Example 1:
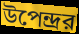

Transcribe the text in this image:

উপেন্দ্রর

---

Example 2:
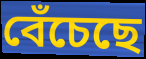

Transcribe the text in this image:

বেঁচেছে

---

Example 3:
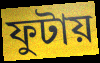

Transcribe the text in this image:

ফুটায়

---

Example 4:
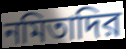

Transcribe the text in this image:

নমিতাদির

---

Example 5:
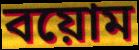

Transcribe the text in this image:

বয়োম